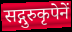
सद्गुरुकृपेनें